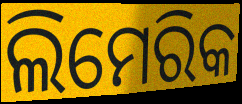
ଲିମେରିକ